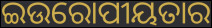
ଇଉରୋପୀୟତାର